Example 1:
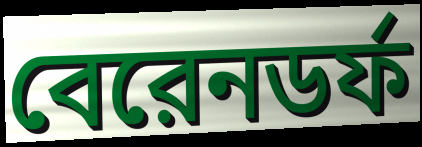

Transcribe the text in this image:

বেরেনডর্ফ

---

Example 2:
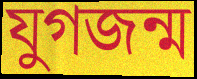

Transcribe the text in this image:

যুগজন্ম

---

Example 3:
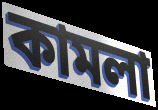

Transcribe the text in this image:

কামলা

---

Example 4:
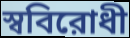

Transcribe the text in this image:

স্ববিরোধী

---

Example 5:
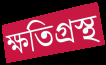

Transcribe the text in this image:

ক্ষতিগ্রস্থ